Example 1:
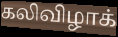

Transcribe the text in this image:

கலிவிழாக்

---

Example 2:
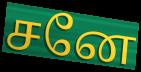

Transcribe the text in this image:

சனே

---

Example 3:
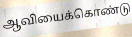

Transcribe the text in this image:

ஆவியைக்கொண்டு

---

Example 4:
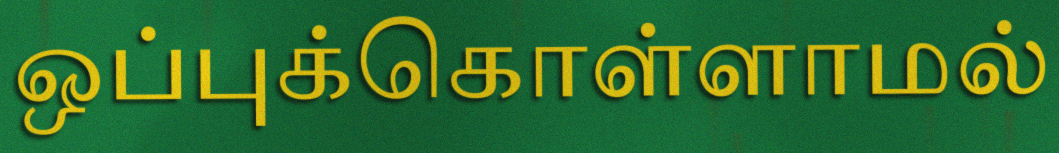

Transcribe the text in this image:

ஒப்புக்கொள்ளாமல்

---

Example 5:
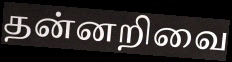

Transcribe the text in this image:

தன்னறிவை